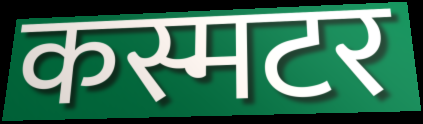
कस्मटर